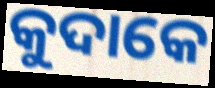
କୁଦାକେ